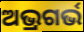
ଅଭ୍ରଗର୍ଭ